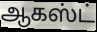
ஆகஸ்ட்